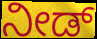
ನೀಡ್